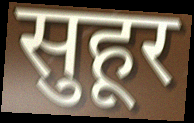
सुहूर